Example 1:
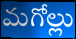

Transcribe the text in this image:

మగోల్లు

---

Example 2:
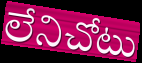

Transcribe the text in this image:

లేనిచోటు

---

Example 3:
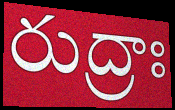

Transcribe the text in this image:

రుద్రాః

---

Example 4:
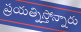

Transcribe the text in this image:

ప్రయత్నిస్తోన్నారు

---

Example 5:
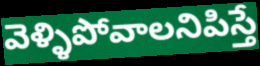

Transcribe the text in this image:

వెళ్ళిపోవాలనిపిస్తే